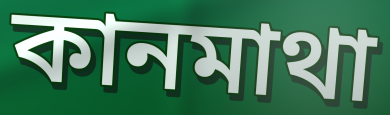
কানমাথা